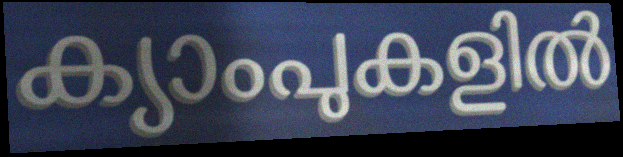
ക്യാംപുകളിൽ